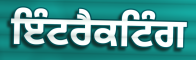
ਇੰਟਰੈਕਟਿੰਗ